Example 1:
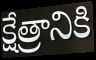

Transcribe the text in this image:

క్షేత్రానికి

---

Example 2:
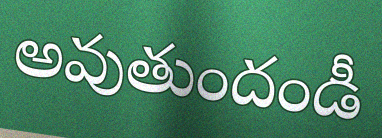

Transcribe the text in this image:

అవుతుందండీ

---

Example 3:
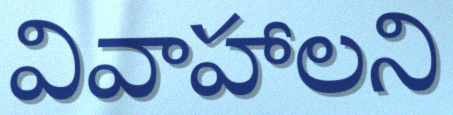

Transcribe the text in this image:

వివాహాలని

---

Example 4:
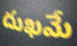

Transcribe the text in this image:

దుఖమే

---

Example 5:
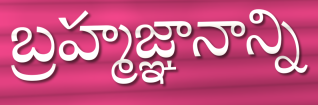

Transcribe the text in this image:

బ్రహ్మజ్ఞానాన్ని